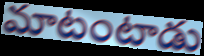
మాటంటాడు